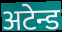
अटेन्ड